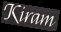
Kiram